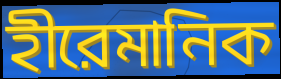
হীরেমানিক